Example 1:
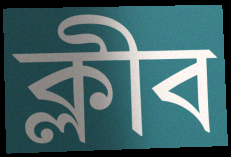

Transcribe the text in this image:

ক্লীব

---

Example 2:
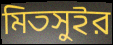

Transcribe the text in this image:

মিতসুইর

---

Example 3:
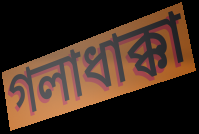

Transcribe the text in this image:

গলাধাক্কা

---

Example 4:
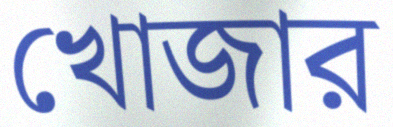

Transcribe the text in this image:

খোজার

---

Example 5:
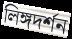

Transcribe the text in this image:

লিঙ্গদর্শন